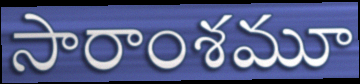
సారాంశమూ